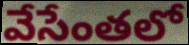
వేసేంతలో